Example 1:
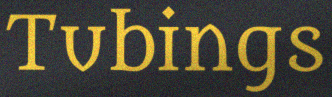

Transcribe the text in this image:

Tubings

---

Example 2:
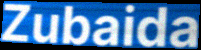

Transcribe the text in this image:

Zubaida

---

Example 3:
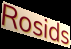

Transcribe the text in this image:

Rosids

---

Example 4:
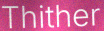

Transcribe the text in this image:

Thither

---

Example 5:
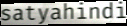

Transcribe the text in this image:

satyahindi